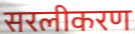
सरलीकरण